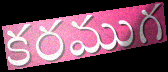
కరముగ